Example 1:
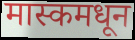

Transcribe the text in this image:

मास्कमधून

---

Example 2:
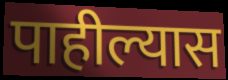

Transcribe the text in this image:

पाहील्यास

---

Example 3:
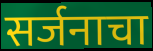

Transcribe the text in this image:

सर्जनाचा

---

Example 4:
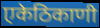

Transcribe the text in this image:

एकेठिकाणी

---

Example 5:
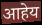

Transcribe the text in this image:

आहेय